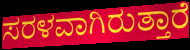
ಸರಳವಾಗಿರುತ್ತಾರೆ